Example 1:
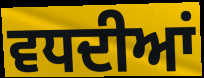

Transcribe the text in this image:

ਵਧਦੀਆਂ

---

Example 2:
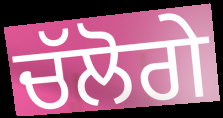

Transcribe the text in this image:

ਚੱਲੋਗੇ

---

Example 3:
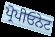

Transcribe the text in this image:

ਪ੍ਰੋਪੀਓਨੇਟ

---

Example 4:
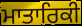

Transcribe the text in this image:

ਮਾਤਾਰਿਕੀ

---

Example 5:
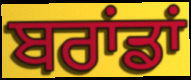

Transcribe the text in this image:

ਬਰਾਂਡਾਂ